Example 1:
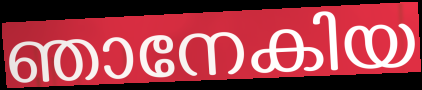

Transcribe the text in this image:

ഞാനേകിയ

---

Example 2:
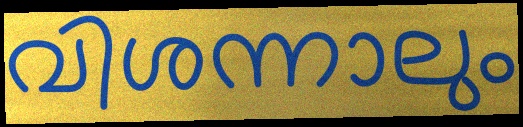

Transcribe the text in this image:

വിശന്നാലും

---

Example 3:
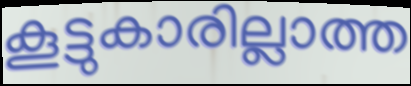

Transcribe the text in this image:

കൂട്ടുകാരില്ലാത്ത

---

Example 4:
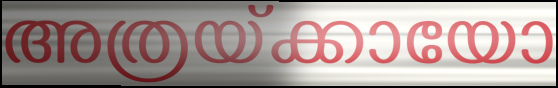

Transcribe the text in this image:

അത്രയ്‌ക്കായോ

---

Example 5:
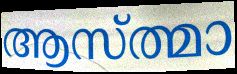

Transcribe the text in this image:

ആസ്ത്മാ